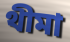
থীমা